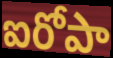
ఐరోపా